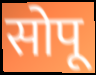
सोपू